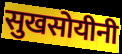
सुखसोयीनी